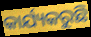
କାର୍ଯ୍ୟକରୁଛି